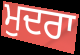
ਮੁਦਰਾ